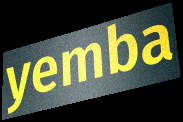
yemba